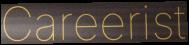
Careerist